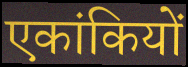
एकांकियों